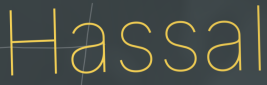
Hassal